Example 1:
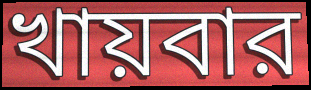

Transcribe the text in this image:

খায়বার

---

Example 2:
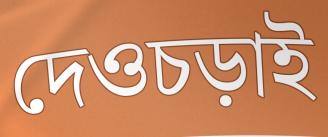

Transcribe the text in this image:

দেওচড়াই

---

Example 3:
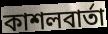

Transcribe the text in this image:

কাশলবার্তা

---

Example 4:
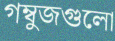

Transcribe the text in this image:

গম্বুজগুলো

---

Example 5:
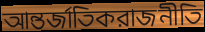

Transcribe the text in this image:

আন্তর্জাতিকরাজনীতি